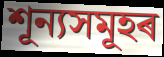
শূন্যসমূহৰ